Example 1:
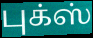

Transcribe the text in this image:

புக்ஸ்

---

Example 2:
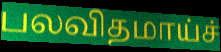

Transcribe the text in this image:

பலவிதமாய்ச்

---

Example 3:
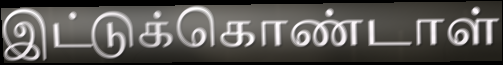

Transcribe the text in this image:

இட்டுக்கொண்டாள்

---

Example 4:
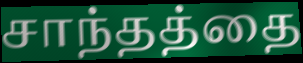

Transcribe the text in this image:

சாந்தத்தை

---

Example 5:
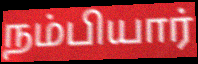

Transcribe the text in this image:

நம்பியார்